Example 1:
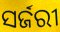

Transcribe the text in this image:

ସର୍ଜରୀ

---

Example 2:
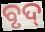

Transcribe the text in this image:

ବୃଦ୍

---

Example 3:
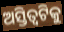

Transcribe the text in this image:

ଅସ୍ତିତ୍ୱଟିକୁ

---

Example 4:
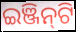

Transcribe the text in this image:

ଇଞ୍ଜିନ୍‌ଟି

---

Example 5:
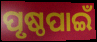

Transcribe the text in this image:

ପୃଷ୍ଠପାଇଁ